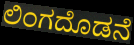
ಲಿಂಗದೊಡನೆ